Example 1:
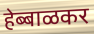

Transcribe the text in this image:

हेब्बाळकर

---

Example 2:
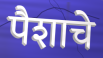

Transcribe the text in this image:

पैशाचे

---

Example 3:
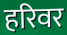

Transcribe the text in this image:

हरिवर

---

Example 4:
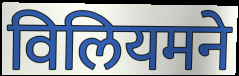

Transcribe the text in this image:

विलियमने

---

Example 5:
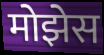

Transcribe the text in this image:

मोझेस